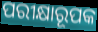
ପରୀକ୍ଷାରୂପକ